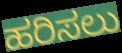
ಹರಿಸಲು